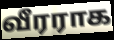
வீரராக